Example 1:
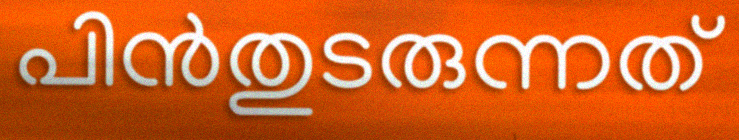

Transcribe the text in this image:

പിൻതുടരുന്നത്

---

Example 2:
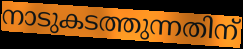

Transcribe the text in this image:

നാടുകടത്തുന്നതിന്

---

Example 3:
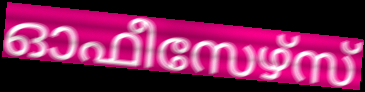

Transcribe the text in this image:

ഓഫീസേഴ്സ്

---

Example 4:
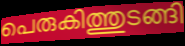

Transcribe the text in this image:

പെരുകിത്തുടങ്ങി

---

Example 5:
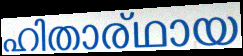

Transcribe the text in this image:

ഹിതാര്ഥായ